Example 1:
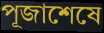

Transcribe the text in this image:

পূজাশেষে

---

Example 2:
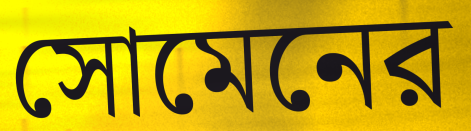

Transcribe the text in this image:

সোমেনের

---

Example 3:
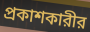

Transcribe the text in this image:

প্রকাশকারীর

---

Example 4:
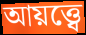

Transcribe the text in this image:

আয়ত্ত্বে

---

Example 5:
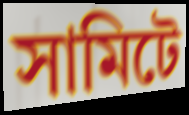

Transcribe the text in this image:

সামিটে